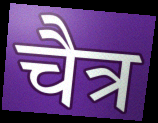
चैत्र